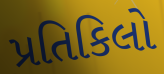
પ્રતિકિલો